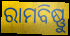
ରାମବିଷ୍ଣୁ